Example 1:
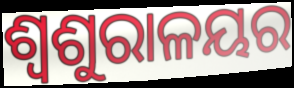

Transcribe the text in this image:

ଶ୍ୱଶୁରାଳୟର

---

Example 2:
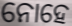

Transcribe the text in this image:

ନୋହେ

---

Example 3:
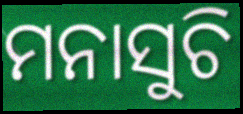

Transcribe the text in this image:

ମନାସୁଚି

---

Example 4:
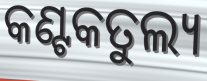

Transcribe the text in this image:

କଣ୍ଟକତୁଲ୍ୟ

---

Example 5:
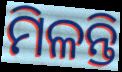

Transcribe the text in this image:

ମିଳନ୍ତି